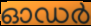
ഓഡർ